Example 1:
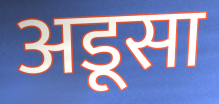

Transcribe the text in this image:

अडूसा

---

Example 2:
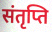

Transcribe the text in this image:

संतृप्ति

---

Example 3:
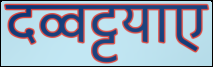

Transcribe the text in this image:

दव्वट्टयाए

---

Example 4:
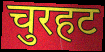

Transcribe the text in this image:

चुरहट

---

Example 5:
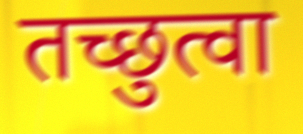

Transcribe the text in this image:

तच्छुत्वा